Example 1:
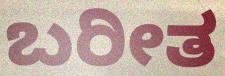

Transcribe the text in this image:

ಬರೀತ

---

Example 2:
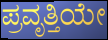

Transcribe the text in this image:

ಪ್ರವೃತ್ತಿಯೇ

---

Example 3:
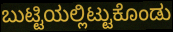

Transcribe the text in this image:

ಬುಟ್ಟಿಯಲ್ಲಿಟ್ಟುಕೊಂಡು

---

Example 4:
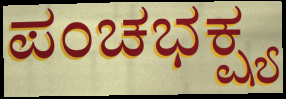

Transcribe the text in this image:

ಪಂಚಭಕ್ಷ್ಯ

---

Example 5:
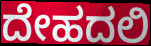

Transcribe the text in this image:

ದೇಹದಲಿ